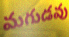
మగుడవు